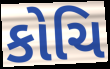
કોચિ